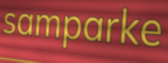
samparke